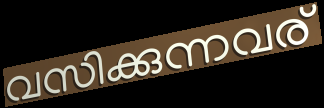
വസിക്കുന്നവര്